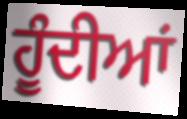
ਹੂੰਦੀਆਂ